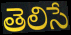
తెలిసే